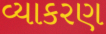
વ્યાકરણ